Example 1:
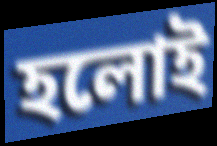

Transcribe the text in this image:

হলোই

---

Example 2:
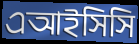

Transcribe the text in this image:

এআইসিসি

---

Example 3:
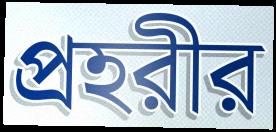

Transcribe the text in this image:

প্রহরীর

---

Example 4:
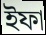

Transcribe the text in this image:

ইফা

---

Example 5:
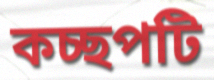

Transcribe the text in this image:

কচ্ছপটি